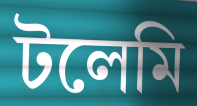
টলেমি